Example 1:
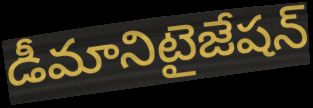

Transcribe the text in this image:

డీమానిటైజేషన్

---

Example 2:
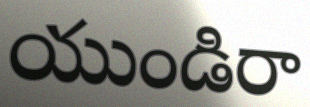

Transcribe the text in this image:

యుండిరా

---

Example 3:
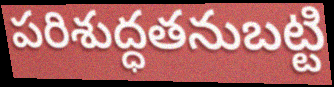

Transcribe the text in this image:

పరిశుద్ధతనుబట్టి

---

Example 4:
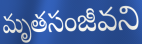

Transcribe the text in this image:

మృతసంజీవని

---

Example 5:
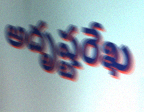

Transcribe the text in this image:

అదృష్టరేఖ